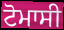
ਟੋਮਾਸੀ